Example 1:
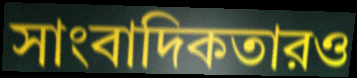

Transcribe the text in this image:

সাংবাদিকতারও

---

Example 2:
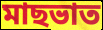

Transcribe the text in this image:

মাছভাত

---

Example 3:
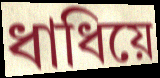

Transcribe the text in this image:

ধাধিয়ে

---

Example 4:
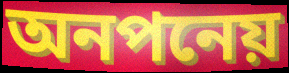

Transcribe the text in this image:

অনপনেয়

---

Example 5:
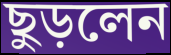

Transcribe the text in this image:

ছুড়লেন